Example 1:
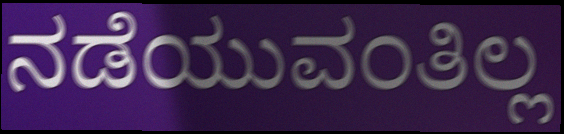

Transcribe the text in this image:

ನಡೆಯುವಂತಿಲ್ಲ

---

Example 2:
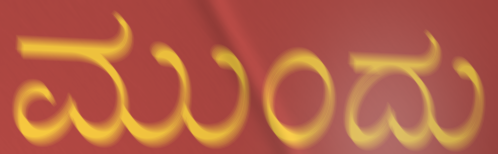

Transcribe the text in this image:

ಮುಂದು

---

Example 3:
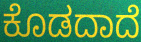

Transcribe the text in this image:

ಕೊಡದಾದೆ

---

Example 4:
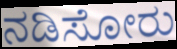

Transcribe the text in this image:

ನಡಿಸೋರು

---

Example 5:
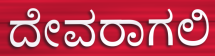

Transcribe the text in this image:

ದೇವರಾಗಲಿ